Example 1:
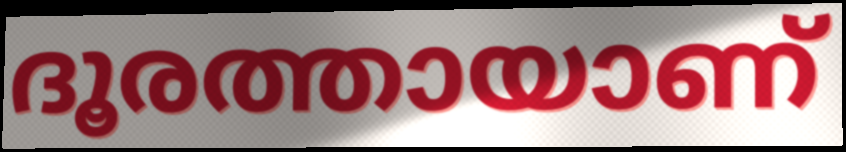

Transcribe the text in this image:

ദൂരത്തായാണ്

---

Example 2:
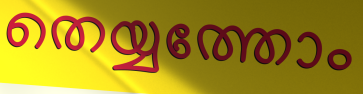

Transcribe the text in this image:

തെയ്യത്തോം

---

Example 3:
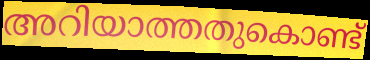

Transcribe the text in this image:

അറിയാത്തതുകൊണ്ട്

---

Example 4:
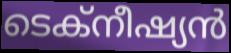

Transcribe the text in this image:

ടെക്നീഷ്യൻ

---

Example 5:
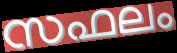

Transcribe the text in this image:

സഫലം